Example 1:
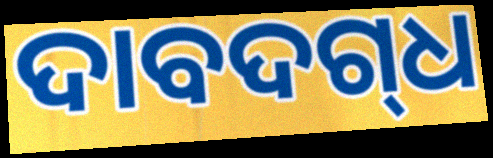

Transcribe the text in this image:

ଦାବଦଗ୍‍ଧ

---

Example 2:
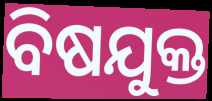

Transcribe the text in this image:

ବିଷଯୁକ୍ତ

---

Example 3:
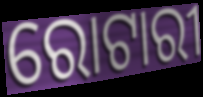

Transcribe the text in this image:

ରୋଟାରୀ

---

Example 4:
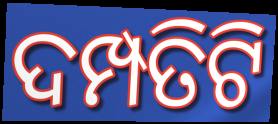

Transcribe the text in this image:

ଦମ୍ପତିଟି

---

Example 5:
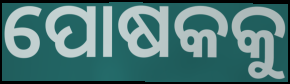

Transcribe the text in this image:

ପୋଷକକୁ